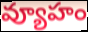
వ్యూహం